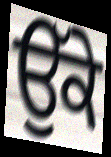
ਉੱਕੇ